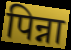
पिन्ना